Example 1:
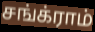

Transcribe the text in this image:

சங்க்ராம்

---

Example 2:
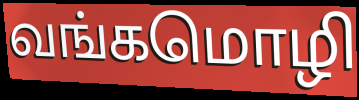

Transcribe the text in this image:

வங்கமொழி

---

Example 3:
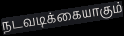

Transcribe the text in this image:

நடவடிக்கையாகும்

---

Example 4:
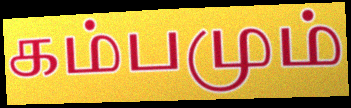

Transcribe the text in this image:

கம்பமும்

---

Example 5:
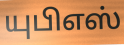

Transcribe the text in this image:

யுபிஎஸ்